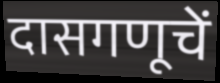
दासगणूचें